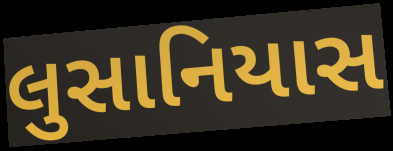
લુસાનિયાસ